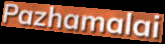
Pazhamalai